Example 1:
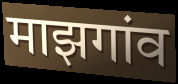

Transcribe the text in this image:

माझगांव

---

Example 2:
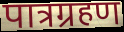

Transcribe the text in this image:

पात्रग्रहण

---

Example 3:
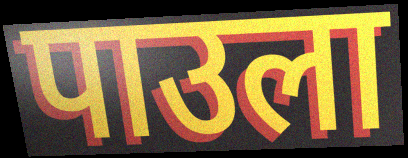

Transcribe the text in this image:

पाउला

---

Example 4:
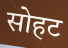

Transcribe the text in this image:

सोहट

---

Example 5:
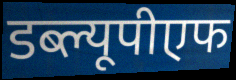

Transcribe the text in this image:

डब्ल्यूपीएफ